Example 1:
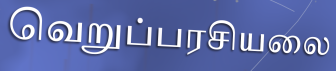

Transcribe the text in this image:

வெறுப்பரசியலை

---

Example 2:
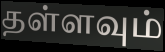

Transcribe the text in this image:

தள்ளவும்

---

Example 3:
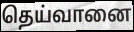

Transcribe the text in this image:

தெய்வானை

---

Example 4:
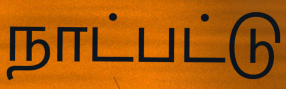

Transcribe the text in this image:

நாட்பட்டு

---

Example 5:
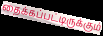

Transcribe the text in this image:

தைக்கப்பட்டிருக்கும்